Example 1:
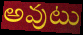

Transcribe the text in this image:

అవుటు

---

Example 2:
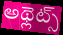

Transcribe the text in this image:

అథ్లెట్స్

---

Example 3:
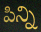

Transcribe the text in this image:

పిన్ని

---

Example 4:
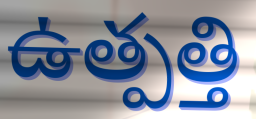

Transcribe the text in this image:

ఉత్పత్తి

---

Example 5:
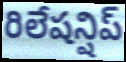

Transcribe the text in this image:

రిలేషన్షిప్